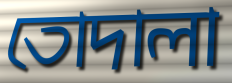
তোদালা